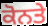
ਕੋਨਤੇ